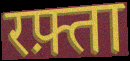
रफ़्ता